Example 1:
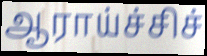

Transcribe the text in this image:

ஆராய்ச்சிச்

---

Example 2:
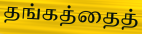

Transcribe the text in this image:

தங்கத்தைத்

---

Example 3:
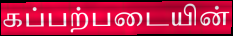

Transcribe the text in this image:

கப்பற்படையின்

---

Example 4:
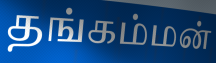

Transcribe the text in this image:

தங்கம்மன்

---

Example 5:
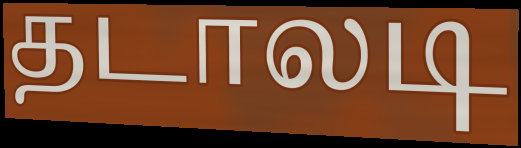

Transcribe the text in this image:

தடாலடி